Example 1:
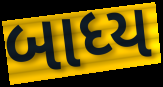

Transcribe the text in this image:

બાધ્ય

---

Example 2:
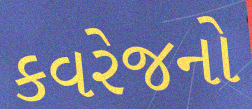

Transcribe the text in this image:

કવરેજનો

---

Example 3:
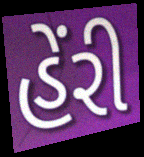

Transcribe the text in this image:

હેંરી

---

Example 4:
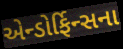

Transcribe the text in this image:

એન્ડોર્ફિન્સના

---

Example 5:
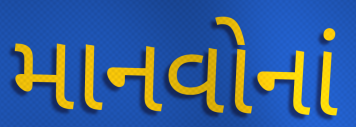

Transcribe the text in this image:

માનવોનાં